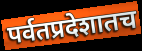
पर्वतप्रदेशातच